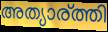
അത്യാര്ത്തി